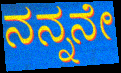
ನನ್ನನೇ